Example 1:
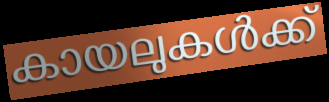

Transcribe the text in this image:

കായലുകൾക്ക്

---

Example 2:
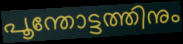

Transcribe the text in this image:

പൂന്തോട്ടത്തിനും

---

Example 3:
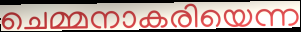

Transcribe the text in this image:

ചെമ്മനാകരിയെന്ന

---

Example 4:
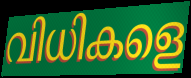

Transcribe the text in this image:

വിധികളെ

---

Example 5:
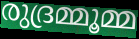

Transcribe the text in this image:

രുദ്രമ്മൂമ്മ